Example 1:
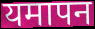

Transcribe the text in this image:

यमापन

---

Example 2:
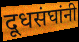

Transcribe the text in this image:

दूधसंघांनी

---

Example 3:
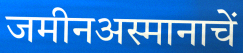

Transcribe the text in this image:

जमीनअस्मानाचें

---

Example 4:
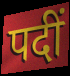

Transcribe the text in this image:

पदीं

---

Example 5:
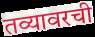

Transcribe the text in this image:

तव्यावरची